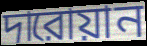
দারোয়ান